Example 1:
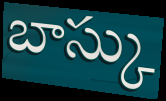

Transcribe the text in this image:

బాస్కు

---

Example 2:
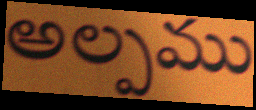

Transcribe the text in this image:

అల్పము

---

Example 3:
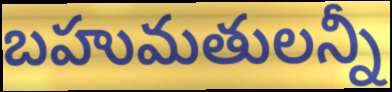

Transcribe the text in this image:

బహుమతులన్నీ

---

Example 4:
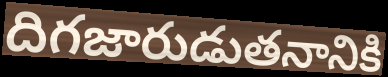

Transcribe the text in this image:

దిగజారుడుతనానికి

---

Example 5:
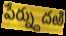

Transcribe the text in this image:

పేర్న్దుదఱి